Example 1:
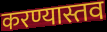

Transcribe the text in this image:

करण्यास्तव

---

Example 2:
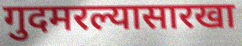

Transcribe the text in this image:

गुदमरल्यासारखा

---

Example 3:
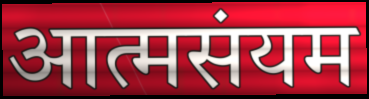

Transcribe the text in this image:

आत्मसंयम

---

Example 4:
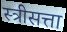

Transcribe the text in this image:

स्त्रीसत्ता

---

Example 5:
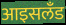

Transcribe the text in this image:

आइसलँड